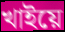
খাইয়ে